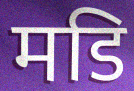
मडि